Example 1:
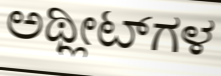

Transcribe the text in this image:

ಅಥ್ಲೀಟ್‌ಗಳ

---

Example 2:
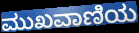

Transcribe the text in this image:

ಮುಖವಾಣಿಯ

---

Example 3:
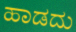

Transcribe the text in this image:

ಹಾಡದು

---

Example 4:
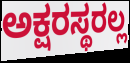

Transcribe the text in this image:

ಅಕ್ಷರಸ್ಥರಲ್ಲ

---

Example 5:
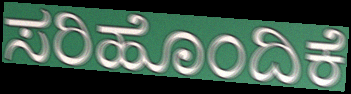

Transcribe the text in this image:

ಸರಿಹೊಂದಿಕೆ